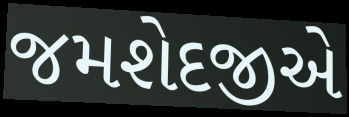
જમશેદજીએ